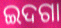
ଇଦଗା